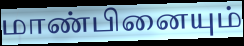
மாண்பினையும்